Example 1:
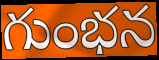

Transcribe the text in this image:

గుంభన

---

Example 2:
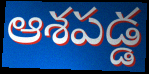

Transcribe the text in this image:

ఆశపడ్డ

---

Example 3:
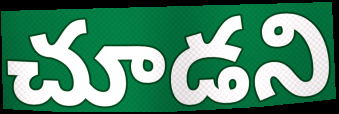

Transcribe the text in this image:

చూడని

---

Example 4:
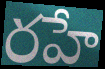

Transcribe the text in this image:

రహే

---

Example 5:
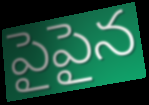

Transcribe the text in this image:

పైపైన